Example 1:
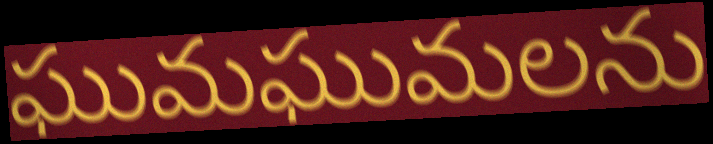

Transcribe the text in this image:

ఘుమఘుమలను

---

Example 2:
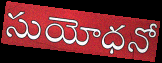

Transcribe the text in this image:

సుయోధనో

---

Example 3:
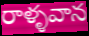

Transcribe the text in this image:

రాళ్ళవాన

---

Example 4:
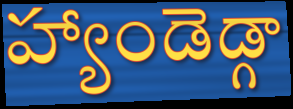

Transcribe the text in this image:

హ్యాండెడ్గా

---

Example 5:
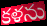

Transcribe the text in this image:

కళను